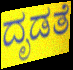
ದೃಡತೆ